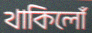
থাকিলোঁ